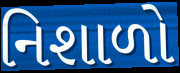
નિશાળો